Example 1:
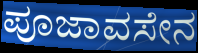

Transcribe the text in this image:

ಪೂಜಾವಸೇನ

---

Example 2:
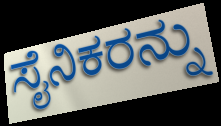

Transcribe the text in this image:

ಸೈನಿಕರನ್ನು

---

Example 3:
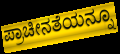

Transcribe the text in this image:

ಪ್ರಾಚೀನತೆಯನ್ನೂ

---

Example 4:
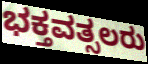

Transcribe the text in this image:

ಭಕ್ತವತ್ಸಲರು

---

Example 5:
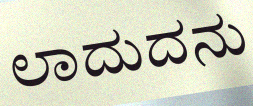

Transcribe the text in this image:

ಲಾದುದನು